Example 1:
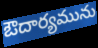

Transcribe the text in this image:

ఔదార్యమును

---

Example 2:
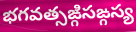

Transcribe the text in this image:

భగవత్సఙ్గిసఙ్గస్య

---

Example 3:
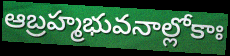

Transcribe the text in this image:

ఆబ్రహ్మభువనాల్లోకాః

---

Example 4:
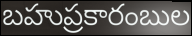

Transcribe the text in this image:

బహుప్రకారంబుల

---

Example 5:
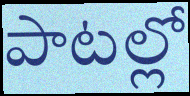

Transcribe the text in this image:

పాటల్లో